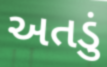
અતડું